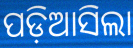
ପଡ଼ିଆସିଲା